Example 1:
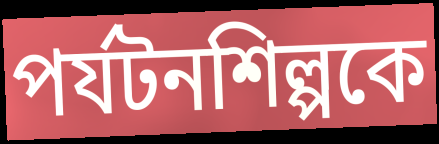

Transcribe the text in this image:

পর্যটনশিল্পকে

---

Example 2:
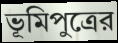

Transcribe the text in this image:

ভূমিপুত্রের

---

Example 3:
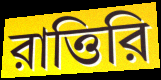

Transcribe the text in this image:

রাত্তিরি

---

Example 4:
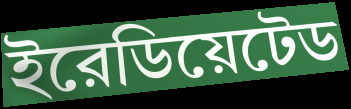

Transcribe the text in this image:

ইরেডিয়েটেড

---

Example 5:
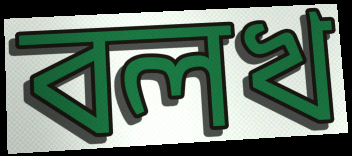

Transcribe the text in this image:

বলখ